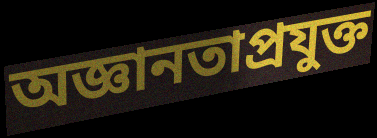
অজ্ঞানতাপ্রযুক্ত